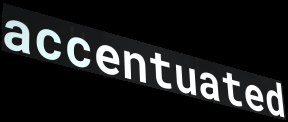
accentuated